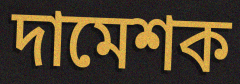
দামেশক